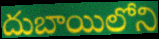
దుబాయిలోని